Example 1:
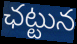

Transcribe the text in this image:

ఛట్టున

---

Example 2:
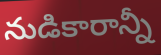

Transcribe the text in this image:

నుడికారాన్నీ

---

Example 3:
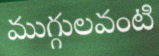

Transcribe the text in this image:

ముగ్గులవంటి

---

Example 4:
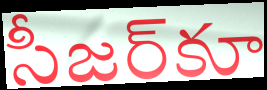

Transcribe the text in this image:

సీజర్‌కూ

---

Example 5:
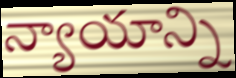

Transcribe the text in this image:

న్యాయాన్ని